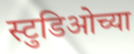
स्टुडिओच्या